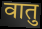
वातु